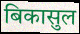
बिकासुल